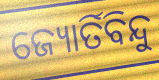
ଜ୍ୟୋର୍ତିବିନ୍ଦୁ